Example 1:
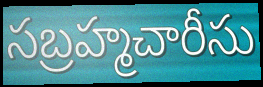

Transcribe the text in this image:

సబ్రహ్మచారీసు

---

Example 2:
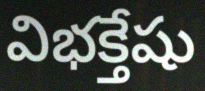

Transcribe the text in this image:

విభక్తేషు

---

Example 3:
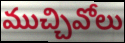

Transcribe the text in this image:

ముచ్చివోలు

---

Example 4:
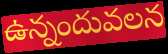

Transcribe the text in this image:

ఉన్నందువలన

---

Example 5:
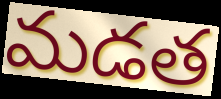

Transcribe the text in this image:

మడత